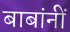
बाबांनीं